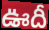
ఊదీ